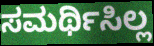
ಸಮರ್ಥಿಸಿಲ್ಲ